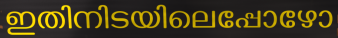
ഇതിനിടയിലെപ്പോഴോ